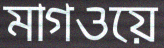
মাগওয়ে